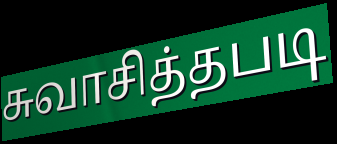
சுவாசித்தபடி